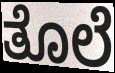
ತೊಲೆ